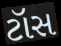
ટૉસ